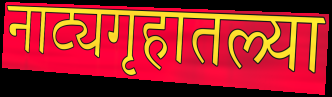
नाट्यगृहातल्या